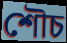
শৌচ